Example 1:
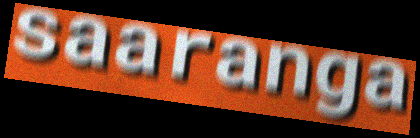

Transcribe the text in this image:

saaranga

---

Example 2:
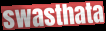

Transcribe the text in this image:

swasthata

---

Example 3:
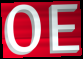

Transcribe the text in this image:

OE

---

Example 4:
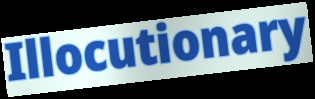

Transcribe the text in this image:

Illocutionary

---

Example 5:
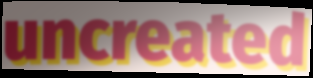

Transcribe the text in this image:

uncreated